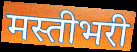
मस्तीभरी